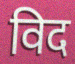
विद